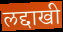
लद्दाखी